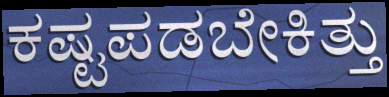
ಕಷ್ಟಪಡಬೇಕಿತ್ತು